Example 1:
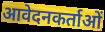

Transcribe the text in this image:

आवेदनकर्ताओं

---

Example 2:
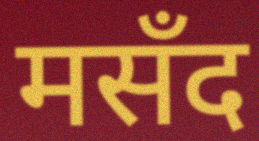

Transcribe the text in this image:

मसँद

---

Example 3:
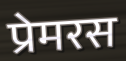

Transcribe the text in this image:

प्रेमरस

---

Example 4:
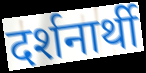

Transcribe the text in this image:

दर्शनार्थी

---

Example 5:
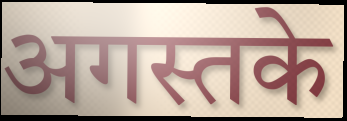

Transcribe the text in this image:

अगस्तके